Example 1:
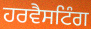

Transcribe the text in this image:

ਹਰਵੈਸਟਿੰਗ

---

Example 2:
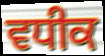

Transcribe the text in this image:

ਵਧੀਕ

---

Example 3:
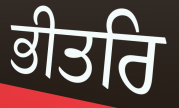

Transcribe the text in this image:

ਭੀਤਰਿ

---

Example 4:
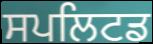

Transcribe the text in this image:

ਸਪਲਿਟਡ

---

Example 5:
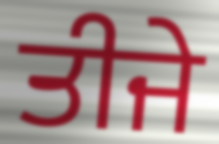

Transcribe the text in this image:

ਤੀਜੇ